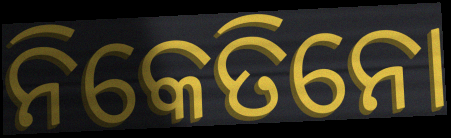
ନିକେତିନୋ